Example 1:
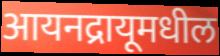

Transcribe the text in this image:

आयनद्रायूमधील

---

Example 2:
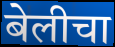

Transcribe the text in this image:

बेलीचा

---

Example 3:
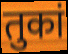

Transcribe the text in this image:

तुकां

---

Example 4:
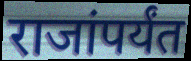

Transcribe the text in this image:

राजांपर्यंत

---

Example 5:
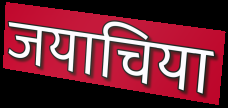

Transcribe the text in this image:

जयाचिया